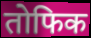
तोफिक